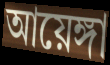
আয়েঙ্গা